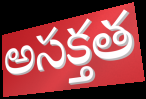
అసక్తత